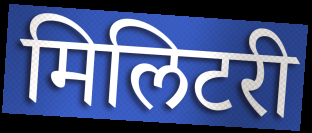
मिलिटरी